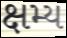
ક્ષમ્ય